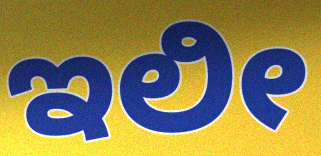
ಇಲೀ